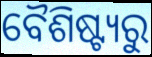
ବୈଶିଷ୍ଟ୍ୟରୁ